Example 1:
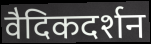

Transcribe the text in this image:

वैदिकदर्शन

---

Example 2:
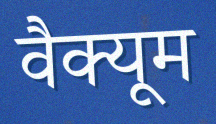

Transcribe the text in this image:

वैक्यूम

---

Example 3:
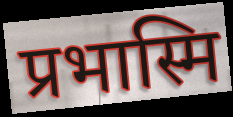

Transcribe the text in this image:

प्रभास्मि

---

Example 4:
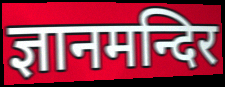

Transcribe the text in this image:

ज्ञानमन्दिर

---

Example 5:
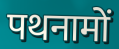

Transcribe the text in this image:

पथनामों